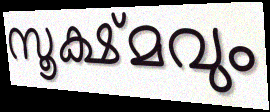
സൂക്ഷ്മവും